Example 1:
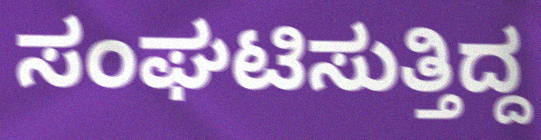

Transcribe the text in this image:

ಸಂಘಟಿಸುತ್ತಿದ್ದ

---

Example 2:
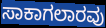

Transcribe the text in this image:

ಸಾಕಾಗಲಾರವು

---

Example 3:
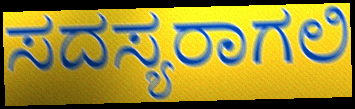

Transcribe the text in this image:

ಸದಸ್ಯರಾಗಲಿ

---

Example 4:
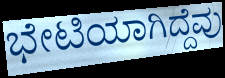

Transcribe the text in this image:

ಭೇಟಿಯಾಗಿದ್ದೆವು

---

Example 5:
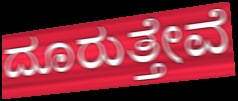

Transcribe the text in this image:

ದೂರುತ್ತೇವೆ